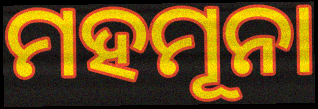
ମହମୂନା